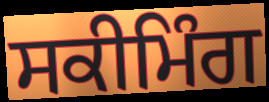
ਸਕੀਮਿੰਗ